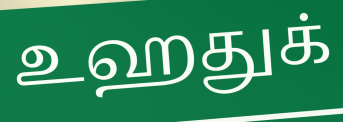
உஹதுக்